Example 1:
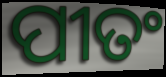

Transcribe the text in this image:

ପୀତଂ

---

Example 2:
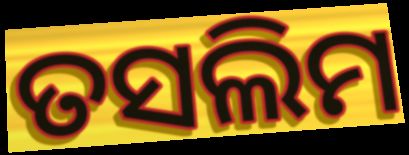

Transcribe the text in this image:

ତସଲିମ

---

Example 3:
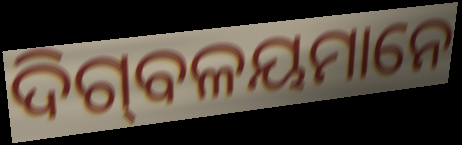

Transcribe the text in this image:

ଦିଗ୍‌ବଳୟମାନେ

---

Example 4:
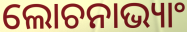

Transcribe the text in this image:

ଲୋଚନାଭ୍ୟାଂ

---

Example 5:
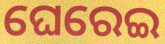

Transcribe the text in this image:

ଘେରେଇ